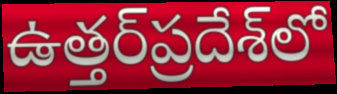
ఉత్తర్‌ప్రదేశ్‌లో